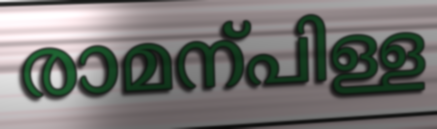
രാമന്പിള്ള